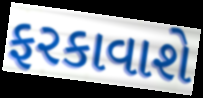
ફરકાવાશે